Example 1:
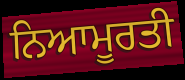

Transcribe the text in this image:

ਨਿਆਮੂਰਤੀ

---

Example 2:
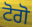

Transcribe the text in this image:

ਟੋਗੋ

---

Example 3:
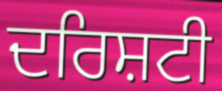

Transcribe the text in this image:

ਦਰਿਸ਼ਟੀ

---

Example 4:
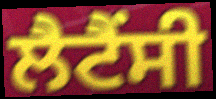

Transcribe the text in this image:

ਲੈਟੈਂਸੀ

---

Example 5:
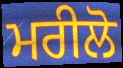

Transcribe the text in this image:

ਮਰੀਲੋ